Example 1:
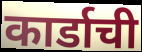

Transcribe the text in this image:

कार्डाची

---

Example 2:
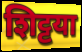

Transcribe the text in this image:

शिट्टया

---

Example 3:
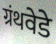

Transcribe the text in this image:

ग्रंथवेडे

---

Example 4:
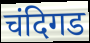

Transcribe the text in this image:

चंदिगड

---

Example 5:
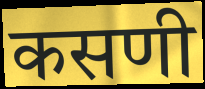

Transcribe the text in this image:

कसणी